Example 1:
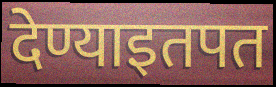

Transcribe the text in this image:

देण्याइतपत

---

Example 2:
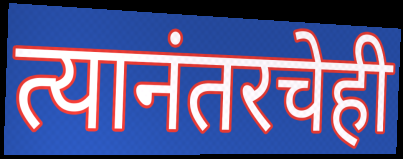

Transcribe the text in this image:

त्यानंतरचेही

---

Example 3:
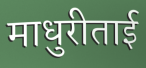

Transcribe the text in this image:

माधुरीताई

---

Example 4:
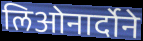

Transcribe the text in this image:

लिओनार्दोने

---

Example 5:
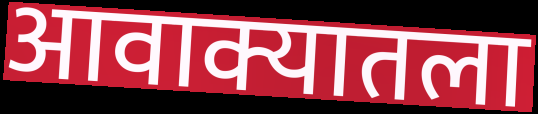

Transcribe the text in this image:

आवाक्यातला